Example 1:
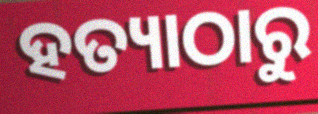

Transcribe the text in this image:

ହତ୍ୟାଠାରୁ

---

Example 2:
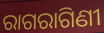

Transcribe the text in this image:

ରାଗରାଗିଣୀ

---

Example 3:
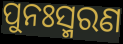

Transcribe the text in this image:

ପୁନଃସ୍ମରଣ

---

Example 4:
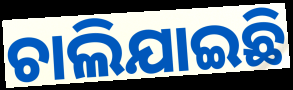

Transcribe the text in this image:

ଚାଲିଯାଇଛି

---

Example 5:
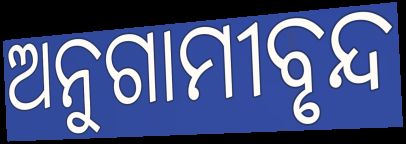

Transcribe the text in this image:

ଅନୁଗାମୀବୃନ୍ଦ